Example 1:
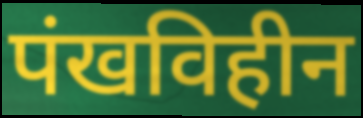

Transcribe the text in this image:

पंखविहीन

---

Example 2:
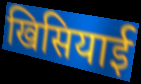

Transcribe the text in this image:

खिसियाई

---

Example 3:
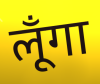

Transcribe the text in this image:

लूँगा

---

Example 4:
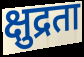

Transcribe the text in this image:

क्षुद्रता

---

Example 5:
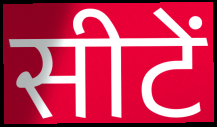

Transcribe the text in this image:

सीटें